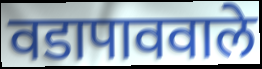
वडापाववाले